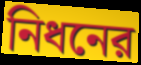
নিধনের